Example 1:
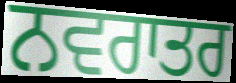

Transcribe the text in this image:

ਨਵਰਾਤਰ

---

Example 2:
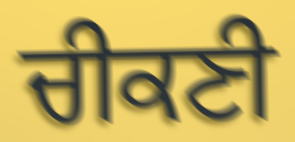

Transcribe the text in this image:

ਚੀਕਣੀ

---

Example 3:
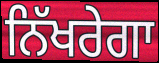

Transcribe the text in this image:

ਨਿੱਖਰੇਗਾ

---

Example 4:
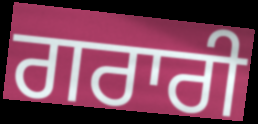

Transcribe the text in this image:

ਗਰਾਰੀ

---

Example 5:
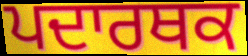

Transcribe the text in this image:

ਪਦਾਰਥਕ